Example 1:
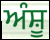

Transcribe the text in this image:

ਅੰਸ਼ੂ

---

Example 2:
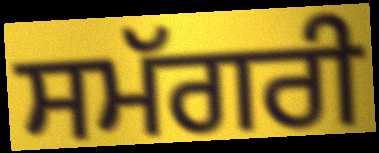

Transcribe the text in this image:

ਸਮੱਗਰੀ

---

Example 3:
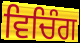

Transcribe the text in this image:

ਵਿਚਿੰਗ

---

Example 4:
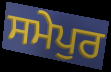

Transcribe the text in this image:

ਸਮੇਪੁਰ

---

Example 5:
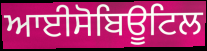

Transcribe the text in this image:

ਆਈਸੋਬਿਊਟਿਲ